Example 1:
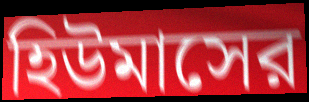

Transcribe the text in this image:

হিউমাসের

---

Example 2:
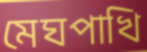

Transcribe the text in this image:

মেঘপাখি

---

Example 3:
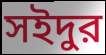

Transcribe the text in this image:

সইদুর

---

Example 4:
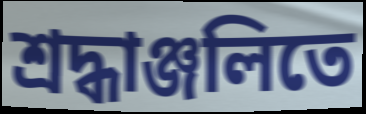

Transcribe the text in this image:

শ্রদ্ধাঞ্জলিতে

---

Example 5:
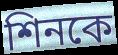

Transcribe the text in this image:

শিনকে